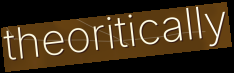
theoritically